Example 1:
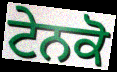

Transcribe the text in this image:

ਟੇਨਕੋ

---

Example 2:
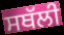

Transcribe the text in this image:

ਸਥੱਲੀ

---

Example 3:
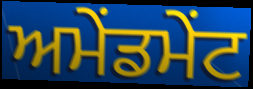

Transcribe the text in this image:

ਅਮੇਂਡਮੇਂਟ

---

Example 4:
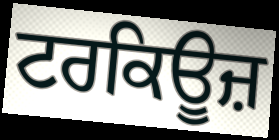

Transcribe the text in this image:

ਟਰਕਿਊਜ਼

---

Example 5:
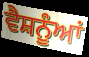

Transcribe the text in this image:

ਵੈਸ਼ਨੂੰਆਂ